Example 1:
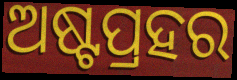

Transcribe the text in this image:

ଅଷ୍ଟପ୍ରହର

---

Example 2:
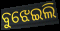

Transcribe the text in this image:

ବୁଝେଇଲି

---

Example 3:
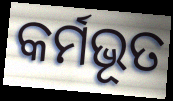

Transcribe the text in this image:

କର୍ମଭୂତ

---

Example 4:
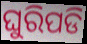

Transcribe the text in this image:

ଘୁରିପଡି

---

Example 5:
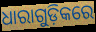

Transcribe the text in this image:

ଧାରାଗୁଡ଼ିକରେ